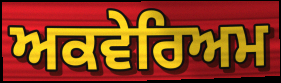
ਅਕਵੇਰਿਅਮ